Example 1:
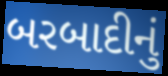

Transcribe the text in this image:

બરબાદીનું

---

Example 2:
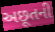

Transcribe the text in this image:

અછૂતની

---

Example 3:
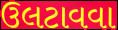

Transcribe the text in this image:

ઉલટાવવા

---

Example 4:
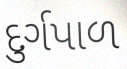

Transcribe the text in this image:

દુર્ગપાળ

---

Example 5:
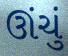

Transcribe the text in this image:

ઊંચું